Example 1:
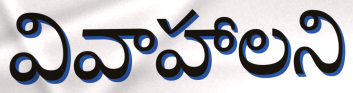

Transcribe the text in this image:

వివాహాలని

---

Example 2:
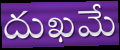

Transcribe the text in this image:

దుఖమే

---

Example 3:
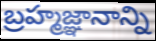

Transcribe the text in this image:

బ్రహ్మజ్ఞానాన్ని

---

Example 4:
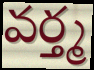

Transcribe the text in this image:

వర్త్మ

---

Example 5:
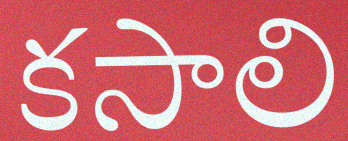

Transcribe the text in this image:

కసాలి